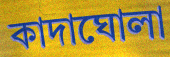
কাদাঘোলা